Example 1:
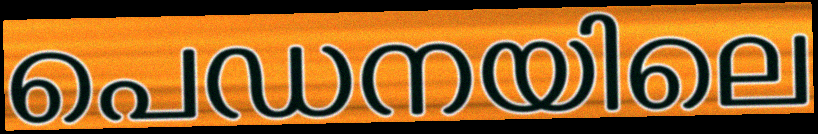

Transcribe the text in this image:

പെഡനയിലെ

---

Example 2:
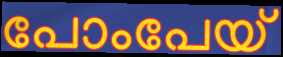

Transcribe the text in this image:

പോംപേയ്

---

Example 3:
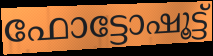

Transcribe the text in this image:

ഫോട്ടോഷൂട്ട്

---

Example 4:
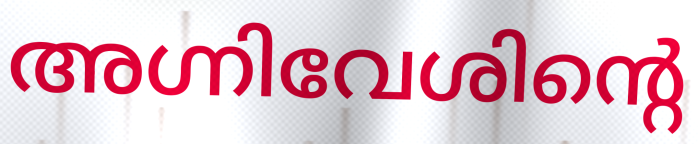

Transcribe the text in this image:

അഗ്നിവേശിന്റെ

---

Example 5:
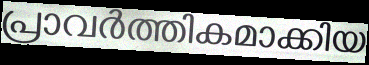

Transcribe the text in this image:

പ്രാവർത്തികമാക്കിയ